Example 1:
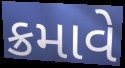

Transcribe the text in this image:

ક્રમાવે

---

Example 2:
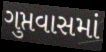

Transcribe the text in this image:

ગુપ્તવાસમાં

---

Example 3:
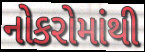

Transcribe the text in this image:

નોકરોમાંથી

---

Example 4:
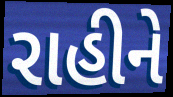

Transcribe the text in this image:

રાહીને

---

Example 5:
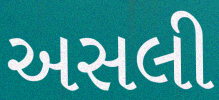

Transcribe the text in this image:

અસલી